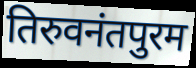
तिरुवनंतपुरम